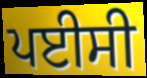
ਪਈਸੀ